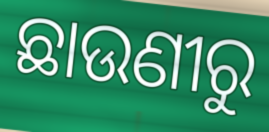
ଛାଉଣୀରୁ